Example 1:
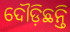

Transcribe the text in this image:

ଦୌଡ଼ିଛନ୍ତି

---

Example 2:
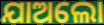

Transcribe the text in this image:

ଯାଅଲୋ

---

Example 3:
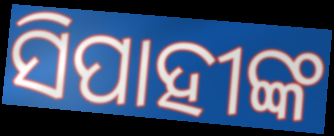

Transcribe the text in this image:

ସିପାହୀଙ୍କ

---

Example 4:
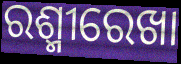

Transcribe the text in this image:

ରଶ୍ମୀରେଖା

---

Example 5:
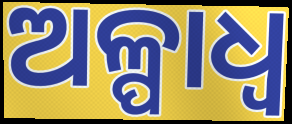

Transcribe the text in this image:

ଅଳ୍ପାଧ୍ଵ